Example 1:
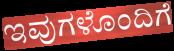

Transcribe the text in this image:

ಇವುಗಳೊಂದಿಗೆ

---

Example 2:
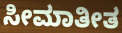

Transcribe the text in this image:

ಸೀಮಾತೀತ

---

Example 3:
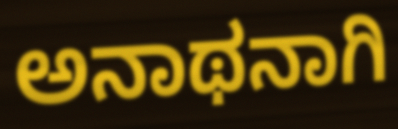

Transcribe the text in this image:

ಅನಾಥನಾಗಿ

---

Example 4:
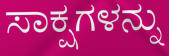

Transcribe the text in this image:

ಸಾಕ್ಷಗಳನ್ನು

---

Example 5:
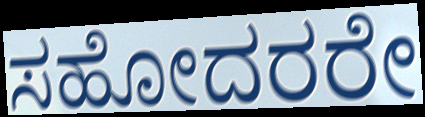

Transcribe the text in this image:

ಸಹೋದರರೇ